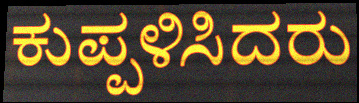
ಕುಪ್ಪಳಿಸಿದರು